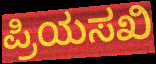
ಪ್ರಿಯಸಖಿ